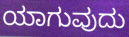
ಯಾಗುವುದು